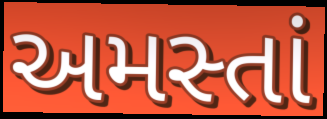
અમસ્તાં